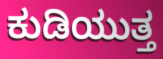
ಕುಡಿಯುತ್ತ